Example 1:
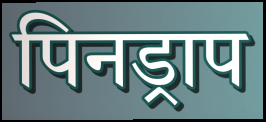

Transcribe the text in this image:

पिनड्राप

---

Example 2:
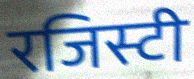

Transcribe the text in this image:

रजिस्टी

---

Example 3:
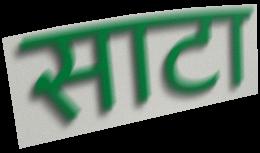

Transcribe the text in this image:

साटा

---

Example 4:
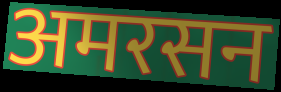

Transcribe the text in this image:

अमरसन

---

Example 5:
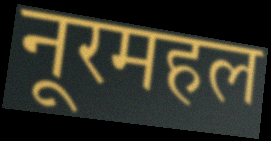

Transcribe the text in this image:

नूरमहल